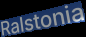
Ralstonia